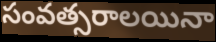
సంవత్సరాలయినా